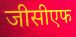
जीसीएफ